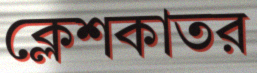
ক্লেশকাতর